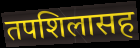
तपशिलासह